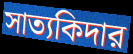
সাত্যকিদার